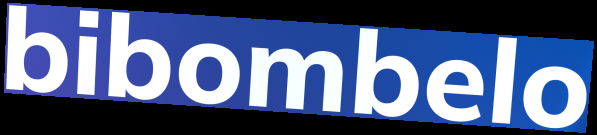
bibombelo